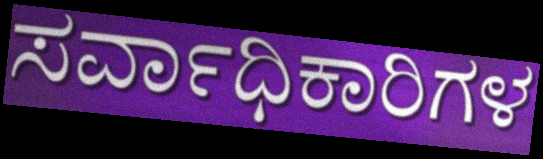
ಸರ್ವಾಧಿಕಾರಿಗಳ